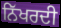
ਨਿੱਖਰਦੀ